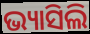
ଭ୍ୟାସିଲି